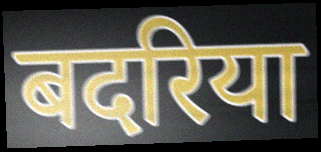
बदरिया